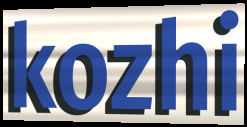
kozhi